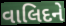
વાલિદને